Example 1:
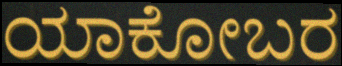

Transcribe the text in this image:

ಯಾಕೋಬರ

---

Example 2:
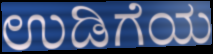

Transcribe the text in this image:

ಉಡಿಗೆಯ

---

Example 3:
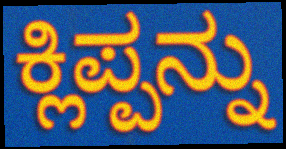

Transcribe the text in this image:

ಕ್ಲಿಪ್ಪನ್ನು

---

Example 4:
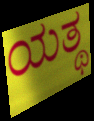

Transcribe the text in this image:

ಯತ್ಥ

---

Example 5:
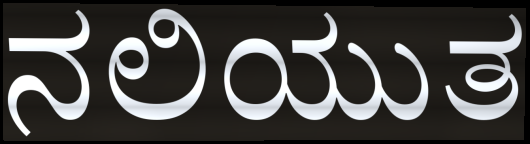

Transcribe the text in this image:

ನಲಿಯುತ